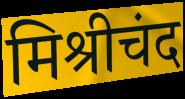
मिश्रीचंद